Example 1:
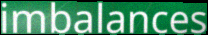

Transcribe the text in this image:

imbalances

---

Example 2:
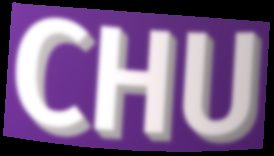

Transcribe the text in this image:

CHU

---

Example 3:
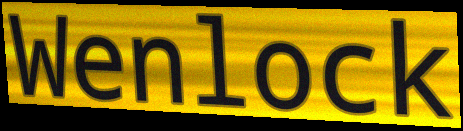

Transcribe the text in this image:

Wenlock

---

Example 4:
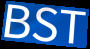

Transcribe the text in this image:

BST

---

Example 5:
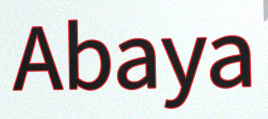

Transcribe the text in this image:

Abaya